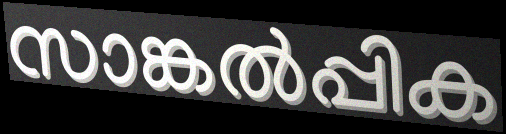
സാങ്കൽപ്പിക